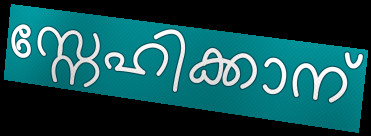
സ്നേഹിക്കാന്